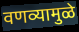
वणव्यामुळे